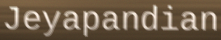
Jeyapandian